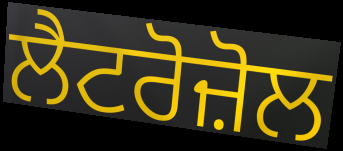
ਲੈਟਰੋਜ਼ੋਲ